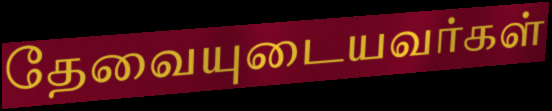
தேவையுடையவர்கள்